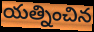
యత్నించిన